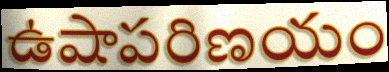
ఉషాపరిణయం